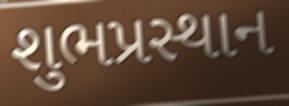
શુભપ્રસ્થાન